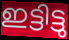
ഇട്ടിട്ടു